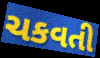
ચકવતી